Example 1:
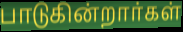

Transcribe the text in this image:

பாடுகின்றார்கள்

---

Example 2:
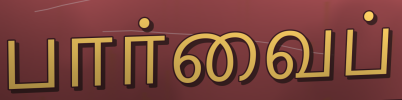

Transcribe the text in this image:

பார்வைப்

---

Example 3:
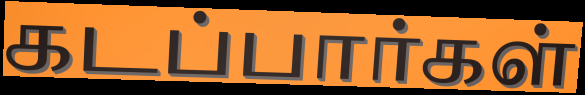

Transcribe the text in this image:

கடப்பார்கள்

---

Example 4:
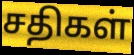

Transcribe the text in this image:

சதிகள்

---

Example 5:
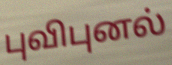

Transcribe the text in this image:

புவிபுனல்